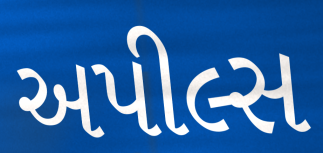
અપીલ્સ